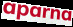
aparna